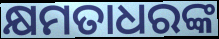
କ୍ଷମତାଧରଙ୍କ